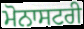
ਮੋਨਾਸਟਰੀ